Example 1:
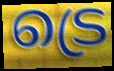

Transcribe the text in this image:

ട്രെ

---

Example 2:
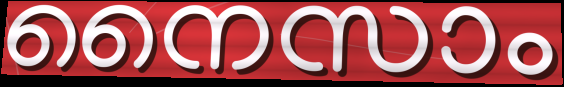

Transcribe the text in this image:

നൈസാം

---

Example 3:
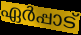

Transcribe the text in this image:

ഏർപ്പാട്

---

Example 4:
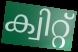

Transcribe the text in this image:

ക്വിറ്റ്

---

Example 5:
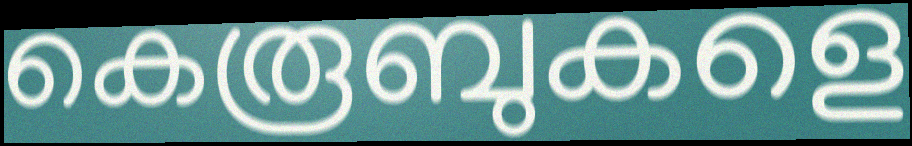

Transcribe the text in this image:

കെരൂബുകളെ